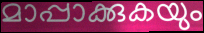
മാപ്പാക്കുകയും